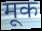
मूक